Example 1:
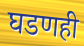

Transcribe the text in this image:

घडणही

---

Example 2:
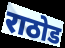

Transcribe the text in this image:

राठोड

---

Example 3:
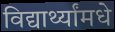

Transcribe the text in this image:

विद्यार्थ्यांमधे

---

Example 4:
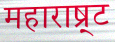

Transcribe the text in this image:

महाराष्र्ट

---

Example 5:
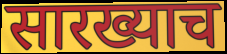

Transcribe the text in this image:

सारख्याच